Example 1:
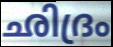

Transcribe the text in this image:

ഛിദ്രം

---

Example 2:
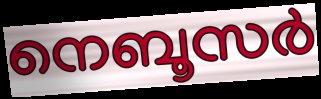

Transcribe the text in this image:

നെബൂസർ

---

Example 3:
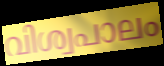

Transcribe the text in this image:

വിശ്വപാലം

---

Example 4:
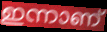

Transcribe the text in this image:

ഇന്നാണ്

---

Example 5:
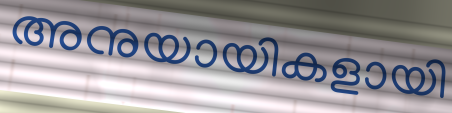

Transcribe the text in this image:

അനുയായികളായി